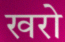
खरो